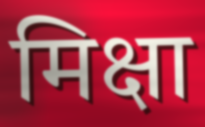
मिक्षा